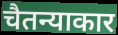
चैतन्याकार